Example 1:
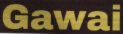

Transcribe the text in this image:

Gawai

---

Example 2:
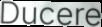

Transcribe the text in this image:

Ducere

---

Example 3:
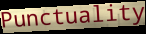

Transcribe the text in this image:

Punctuality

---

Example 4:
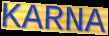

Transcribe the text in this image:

KARNA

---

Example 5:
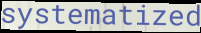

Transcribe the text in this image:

systematized